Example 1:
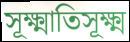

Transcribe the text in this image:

সূক্ষ্মাতিসূক্ষ্ম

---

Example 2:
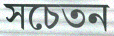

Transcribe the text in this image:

সচেতন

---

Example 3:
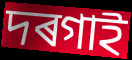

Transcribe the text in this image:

দৰগাই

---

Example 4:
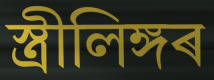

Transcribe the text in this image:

স্ত্ৰীলিঙ্গৰ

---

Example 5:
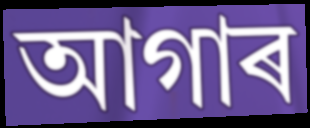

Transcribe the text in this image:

আগাৰ